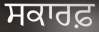
ਸਕਾਰਫ਼